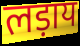
लड़ाय